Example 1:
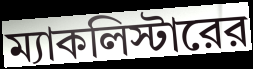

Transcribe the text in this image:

ম্যাকলিস্টারের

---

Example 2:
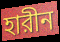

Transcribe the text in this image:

হারীন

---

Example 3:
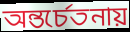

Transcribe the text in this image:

অন্তর্চেতনায়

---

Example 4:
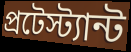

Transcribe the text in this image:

প্রটেস্ট্যান্ট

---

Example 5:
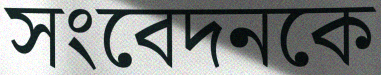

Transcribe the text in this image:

সংবেদনকে